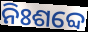
ନିଃଶବ୍ଦେ